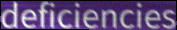
deficiencies